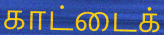
காட்டைக்